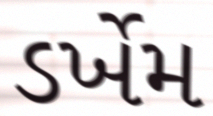
ડર્ખેમ